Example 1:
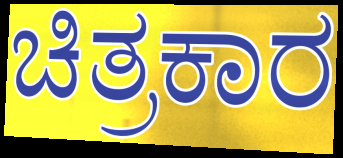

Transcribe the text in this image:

ಚಿತ್ರಕಾರ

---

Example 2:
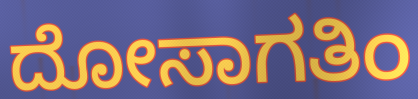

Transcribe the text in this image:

ದೋಸಾಗತಿಂ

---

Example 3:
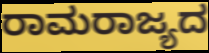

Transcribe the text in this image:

ರಾಮರಾಜ್ಯದ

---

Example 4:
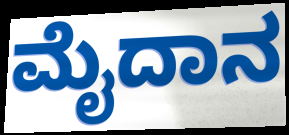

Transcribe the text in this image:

ಮೈದಾನ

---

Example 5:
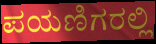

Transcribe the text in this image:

ಪಯಣಿಗರಲ್ಲಿ